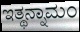
ಇತ್ಥನ್ನಾಮಂ